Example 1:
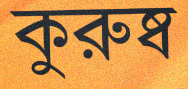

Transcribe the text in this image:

কুরুষ্ব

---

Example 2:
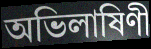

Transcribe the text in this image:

অভিলাষিণী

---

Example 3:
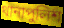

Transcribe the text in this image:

থানাপুলিশ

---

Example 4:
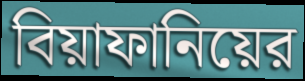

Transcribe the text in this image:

বিয়াফানিয়ের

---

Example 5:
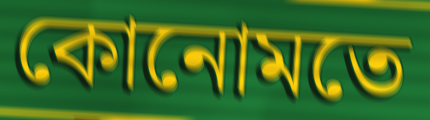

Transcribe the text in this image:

কোনোমতে